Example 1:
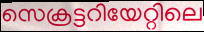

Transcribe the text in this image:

സെക്രട്ടറിയേറ്റിലെ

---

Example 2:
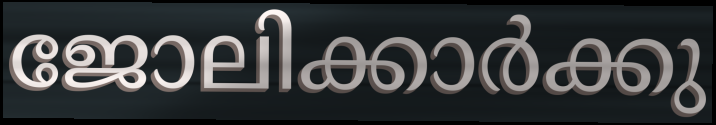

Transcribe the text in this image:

ജോലിക്കാർക്കു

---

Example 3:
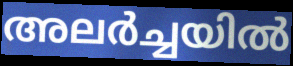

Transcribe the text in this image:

അലർച്ചയിൽ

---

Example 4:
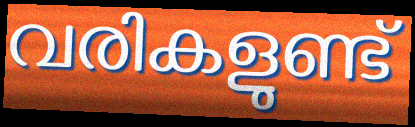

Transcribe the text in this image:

വരികളുണ്ട്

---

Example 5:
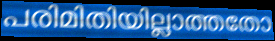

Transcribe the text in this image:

പരിമിതിയില്ലാത്തതോ